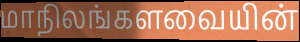
மாநிலங்களவையின்